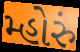
મ્હોરું